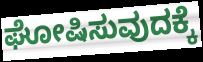
ಘೋಷಿಸುವುದಕ್ಕೆ